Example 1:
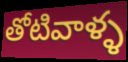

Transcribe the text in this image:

తోటివాళ్ళ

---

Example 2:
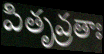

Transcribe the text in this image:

పితృవ్రతాః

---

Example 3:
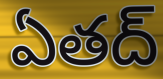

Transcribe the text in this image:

ఏతద్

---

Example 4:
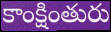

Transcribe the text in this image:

కాంక్షింతురు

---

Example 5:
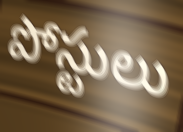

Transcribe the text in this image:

పోస్టులు